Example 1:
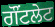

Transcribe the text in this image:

ਗੌਂਟਲੇਟ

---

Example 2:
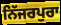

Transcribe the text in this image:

ਨਿੱਜਰਪੁਰਾ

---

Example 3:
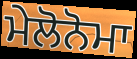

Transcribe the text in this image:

ਮੇਲੋਨੋਮਾ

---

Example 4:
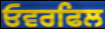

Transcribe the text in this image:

ਓਵਰਫਿਲ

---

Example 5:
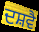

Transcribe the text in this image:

ਦਸ਼ਵੈ